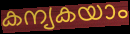
കന്യകയാം